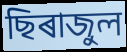
ছিৰাজুল